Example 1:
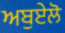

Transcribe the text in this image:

ਅਬੁਏਲੋ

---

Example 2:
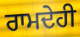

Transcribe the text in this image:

ਰਾਮਦੇਹੀ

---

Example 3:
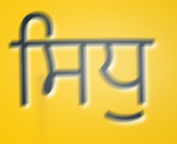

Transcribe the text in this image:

ਸਿਧੁ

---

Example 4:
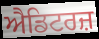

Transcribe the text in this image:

ਐਡਿਟਰਜ਼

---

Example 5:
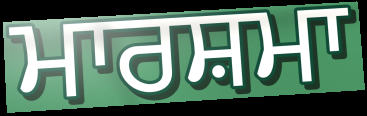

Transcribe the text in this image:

ਮਾਰਸ਼ਮਾ